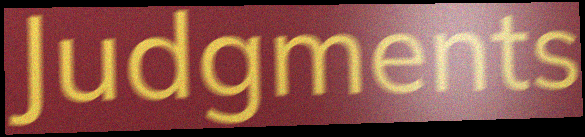
Judgments